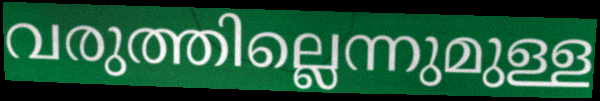
വരുത്തില്ലെന്നുമുള്ള